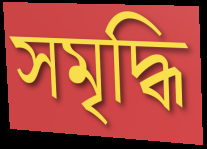
সমৃদ্ধি